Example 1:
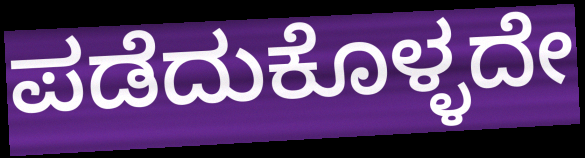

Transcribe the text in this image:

ಪಡೆದುಕೊಳ್ಳದೇ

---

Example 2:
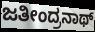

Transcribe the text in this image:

ಜತೀಂದ್ರನಾಥ್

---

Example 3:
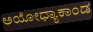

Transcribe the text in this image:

ಅಯೋಧ್ಯಾಕಾಂಡ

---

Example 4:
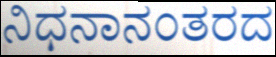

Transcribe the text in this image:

ನಿಧನಾನಂತರದ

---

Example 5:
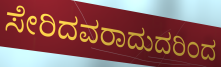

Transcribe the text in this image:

ಸೇರಿದವರಾದುದರಿಂದ